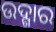
ଉଦ୍ଗାର